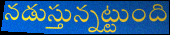
నడుస్తున్నట్టుంది